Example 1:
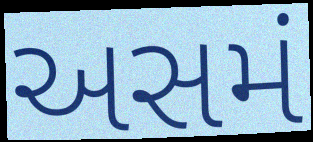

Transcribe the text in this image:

અસમં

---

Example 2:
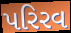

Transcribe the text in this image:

પરિરવ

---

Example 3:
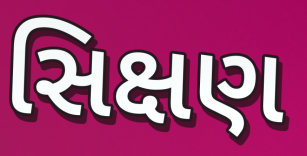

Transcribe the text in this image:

સિક્ષણ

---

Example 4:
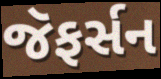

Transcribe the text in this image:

જૅફર્સન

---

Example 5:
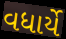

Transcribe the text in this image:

વધાર્યે